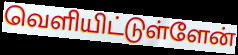
வெளியிட்டுள்ளேன்